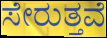
ಸೇರುತ್ತವೆ